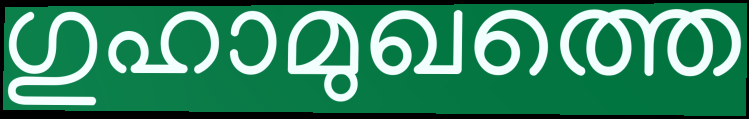
ഗുഹാമുഖത്തെ